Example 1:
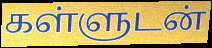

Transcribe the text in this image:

கள்ளுடன்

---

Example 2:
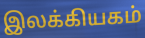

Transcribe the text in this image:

இலக்கியகம்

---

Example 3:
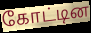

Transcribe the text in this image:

கோட்டின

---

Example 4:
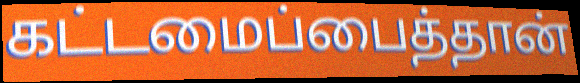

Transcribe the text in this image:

கட்டமைப்பைத்தான்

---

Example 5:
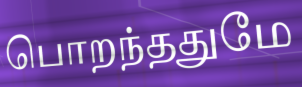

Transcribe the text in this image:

பொறந்ததுமே